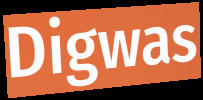
Digwas